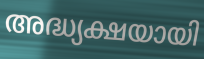
അദ്ധ്യക്ഷയായി